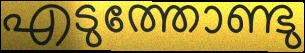
എടുത്തോണ്ടു